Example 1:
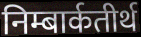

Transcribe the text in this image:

निम्बार्कतीर्थ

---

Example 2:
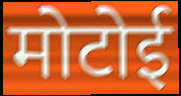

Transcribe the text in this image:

मोटोई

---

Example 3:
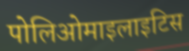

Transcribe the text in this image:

पोलिओमाइलाइटिस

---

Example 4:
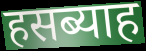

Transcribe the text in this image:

हसब्याह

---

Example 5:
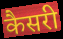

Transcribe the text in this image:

कैसरी